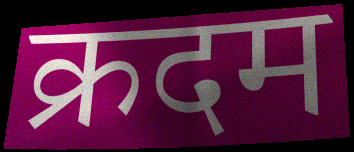
क्रदम